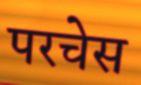
परचेस